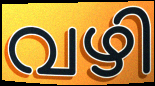
വഴി